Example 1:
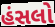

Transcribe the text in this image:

હંસલો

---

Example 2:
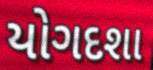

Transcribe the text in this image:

યોગદશા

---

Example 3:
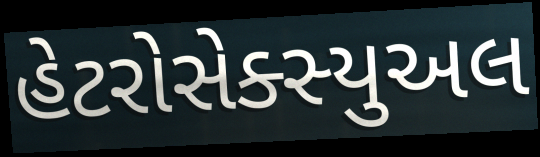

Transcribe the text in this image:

હેટરોસેક્સ્યુઅલ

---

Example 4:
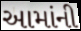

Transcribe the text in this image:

આમાંની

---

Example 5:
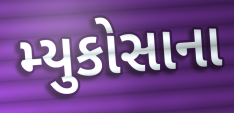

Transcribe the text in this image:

મ્યુકોસાના